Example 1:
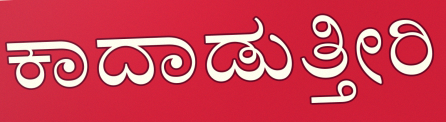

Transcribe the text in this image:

ಕಾದಾಡುತ್ತೀರಿ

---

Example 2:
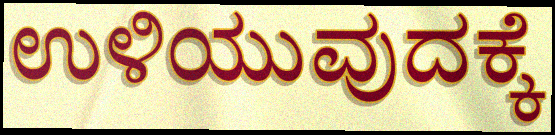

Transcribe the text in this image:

ಉಳಿಯುವುದಕ್ಕೆ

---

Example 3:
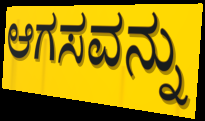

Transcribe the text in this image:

ಆಗಸವನ್ನು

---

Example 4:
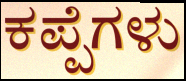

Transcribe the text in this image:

ಕಪ್ಪೆಗಳು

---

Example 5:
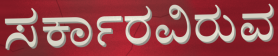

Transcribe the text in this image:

ಸರ್ಕಾರವಿರುವ